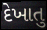
દેખાતુ